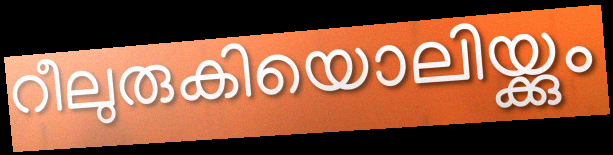
റീലുരുകിയൊലിയ്ക്കും